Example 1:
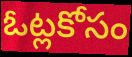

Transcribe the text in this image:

ఓట్లకోసం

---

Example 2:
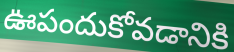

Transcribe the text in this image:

ఊపందుకోవడానికి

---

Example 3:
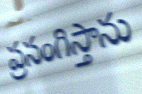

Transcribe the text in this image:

ప్రసంగిస్తాను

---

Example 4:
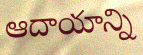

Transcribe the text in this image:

ఆదాయాన్ని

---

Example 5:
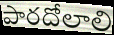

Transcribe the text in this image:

పారదోలాలి